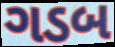
ગડબ